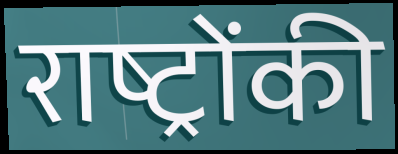
राष्ट्रोंकी